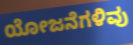
ಯೋಜನೆಗಳಿವು